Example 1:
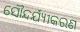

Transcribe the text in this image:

ସୌନ୍ଦର୍ଯ୍ୟୀକରଣ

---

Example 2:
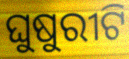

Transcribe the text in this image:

ଘୁଷୁରୀଟି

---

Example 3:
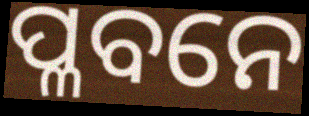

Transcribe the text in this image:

ପ୍ଳବନେ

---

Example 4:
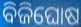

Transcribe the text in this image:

ବିଜିଘୋଷ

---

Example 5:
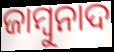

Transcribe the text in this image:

ଜାମ୍ବୁନାଦ